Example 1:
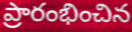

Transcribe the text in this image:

ప్రారంభించిన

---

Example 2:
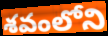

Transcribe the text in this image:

శవంలోని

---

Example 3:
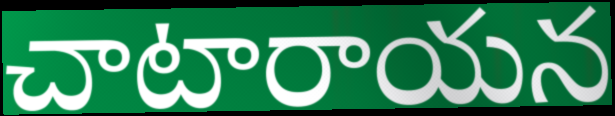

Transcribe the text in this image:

చాటారాయన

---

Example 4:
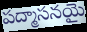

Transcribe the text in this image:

పద్మాసనయై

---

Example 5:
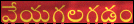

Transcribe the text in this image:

వేయగలగడం